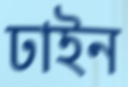
ঢাইন